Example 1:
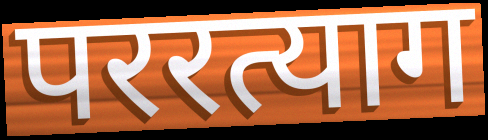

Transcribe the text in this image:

पररत्याग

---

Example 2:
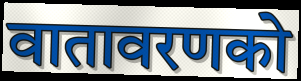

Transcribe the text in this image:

वातावरणको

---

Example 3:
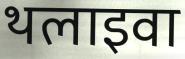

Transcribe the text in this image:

थलाइवा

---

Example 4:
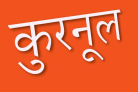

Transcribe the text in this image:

कुरनूल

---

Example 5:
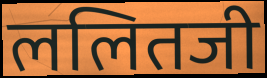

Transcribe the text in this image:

ललितजी